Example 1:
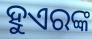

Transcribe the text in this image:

ହୁଏରଙ୍କ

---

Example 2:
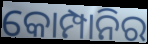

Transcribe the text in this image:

କୋମ୍ପାନିର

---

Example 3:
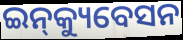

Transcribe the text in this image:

ଇନ୍‌କ୍ୟୁବେସନ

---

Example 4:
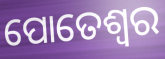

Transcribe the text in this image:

ପୋତେଶ୍ବର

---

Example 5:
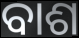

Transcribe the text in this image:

ବାଶ